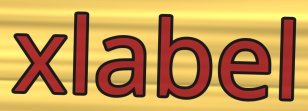
xlabel